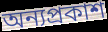
অন্যপ্রকাশ